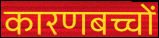
कारणबच्चों